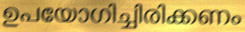
ഉപയോഗിച്ചിരിക്കണം